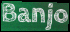
Banjo